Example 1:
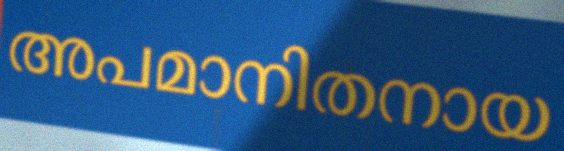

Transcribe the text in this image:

അപമാനിതനായ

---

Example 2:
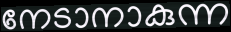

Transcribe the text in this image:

നേടാനാകുന്ന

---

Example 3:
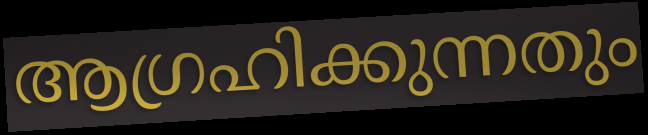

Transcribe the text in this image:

ആഗ്രഹിക്കുന്നതും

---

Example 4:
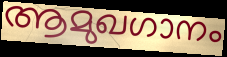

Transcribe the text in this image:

ആമുഖഗാനം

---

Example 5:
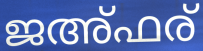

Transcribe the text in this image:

ജഅ്ഫര്